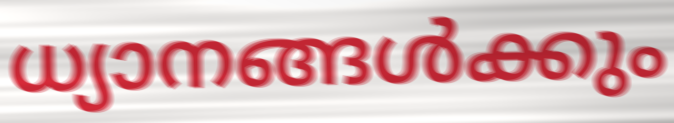
ധ്യാനങ്ങൾക്കും